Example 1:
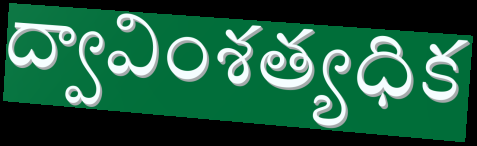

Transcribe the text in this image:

ద్వావింశత్యధిక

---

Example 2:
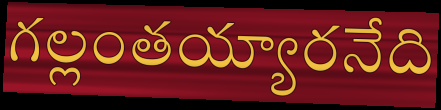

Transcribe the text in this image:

గల్లంతయ్యారనేది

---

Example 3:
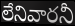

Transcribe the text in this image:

లేనివారనీ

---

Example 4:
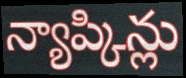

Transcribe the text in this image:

న్యాప్కిన్లు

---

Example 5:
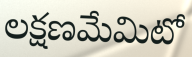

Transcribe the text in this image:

లక్షణమేమిటో